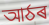
আঠৰ